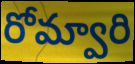
రోమ్వారి